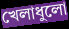
খেলাধুলো